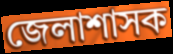
জেলাশাসক